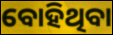
ବୋହିଥିବା